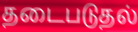
தடைபடுதல்